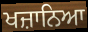
ਖਜ਼ਾਨਿਆ